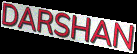
DARSHAN